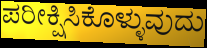
ಪರೀಕ್ಷಿಸಿಕೊಳ್ಳುವುದು